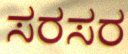
ಸರಸರ